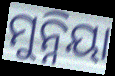
ମୁନ୍ନିୟା